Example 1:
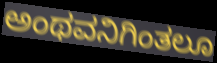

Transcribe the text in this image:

ಅಂಥವನಿಗಿಂತಲೂ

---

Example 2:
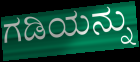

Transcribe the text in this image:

ಗಡಿಯನ್ನು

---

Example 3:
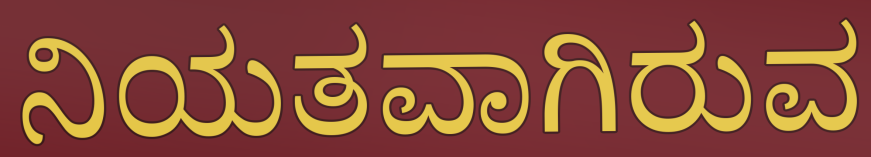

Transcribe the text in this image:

ನಿಯತವಾಗಿರುವ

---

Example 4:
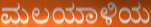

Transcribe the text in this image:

ಮಲಯಾಳಿಯ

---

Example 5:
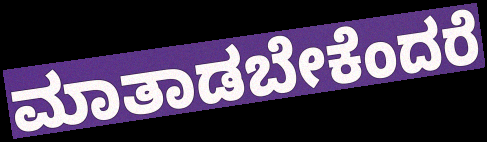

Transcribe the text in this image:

ಮಾತಾಡಬೇಕೆಂದರೆ